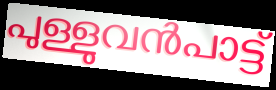
പുള്ളുവൻപാട്ട്